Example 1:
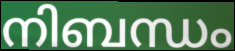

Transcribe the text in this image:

നിബന്ധം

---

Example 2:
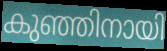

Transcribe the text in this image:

കുഞ്ഞിനായി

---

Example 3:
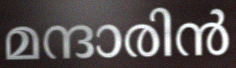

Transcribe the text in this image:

മന്ദാരിൻ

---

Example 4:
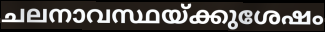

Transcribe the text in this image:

ചലനാവസ്ഥയ്ക്കുശേഷം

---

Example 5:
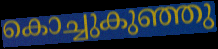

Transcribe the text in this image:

കൊച്ചുകുഞ്ഞു